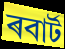
ৰবাৰ্ট